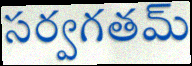
సర్వగతమ్